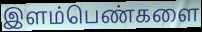
இளம்பெண்களை